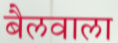
बैलवाला